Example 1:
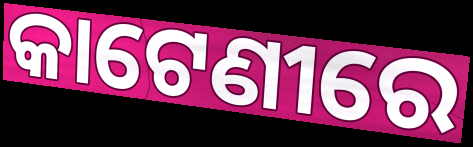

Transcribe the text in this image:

କାଟେଣୀରେ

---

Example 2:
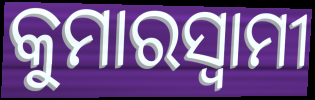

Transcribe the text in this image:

କୁମାରସ୍ୱାମୀ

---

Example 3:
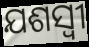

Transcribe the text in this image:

ଯଶସ୍ବୀ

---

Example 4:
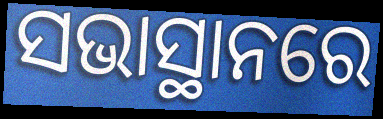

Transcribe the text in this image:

ସଭାସ୍ଥାନରେ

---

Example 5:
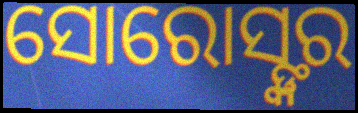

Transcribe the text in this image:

ସୋରୋସ୍ଙ୍କର